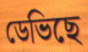
ডেভিছে